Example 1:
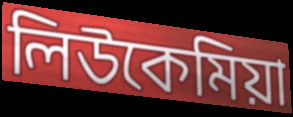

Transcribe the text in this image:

লিউকেমিয়া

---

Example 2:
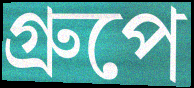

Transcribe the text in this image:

গ্রুপে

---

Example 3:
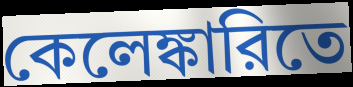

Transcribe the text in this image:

কেলেঙ্কারিতে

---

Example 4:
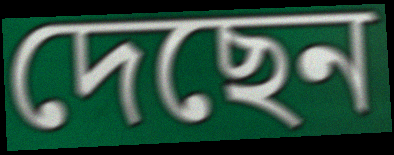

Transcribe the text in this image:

দেছেন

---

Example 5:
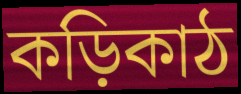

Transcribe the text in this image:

কড়িকাঠ